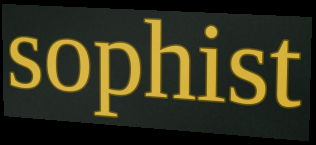
sophist